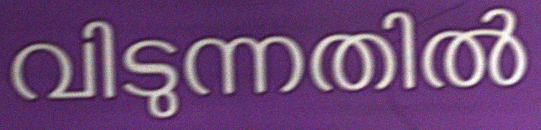
വിടുന്നതിൽ